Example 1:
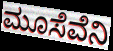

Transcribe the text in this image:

ಮೂಸೆವೆನಿ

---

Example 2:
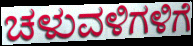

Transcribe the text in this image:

ಚಳುವಳಿಗಳಿಗೆ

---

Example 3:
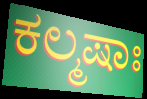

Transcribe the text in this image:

ಕಲ್ಮಷಾಃ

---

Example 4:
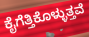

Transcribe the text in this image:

ಕೈಗೆತ್ತಿಕೊಳ್ಳುತ್ತವೆ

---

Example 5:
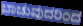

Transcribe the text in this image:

ಬಾಚುವುದರಿಂದ